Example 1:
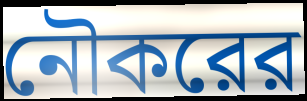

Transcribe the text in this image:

নৌকরের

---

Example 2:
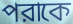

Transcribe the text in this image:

পরাকে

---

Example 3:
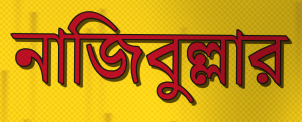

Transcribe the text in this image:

নাজিবুল্লার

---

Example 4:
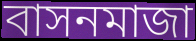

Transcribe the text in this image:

বাসনমাজা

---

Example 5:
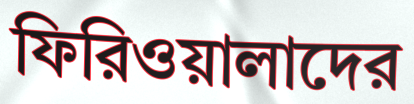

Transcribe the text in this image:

ফিরিওয়ালাদের